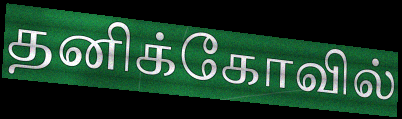
தனிக்கோவில்